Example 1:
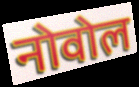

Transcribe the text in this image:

नोवोल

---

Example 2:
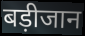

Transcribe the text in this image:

बड़ीजान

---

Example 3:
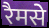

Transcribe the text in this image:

रैमसे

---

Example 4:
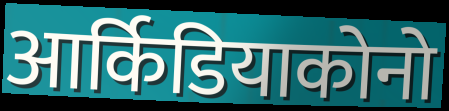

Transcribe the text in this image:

आर्किडियाकोनो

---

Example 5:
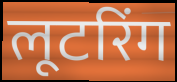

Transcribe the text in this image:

लूटरिंग